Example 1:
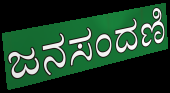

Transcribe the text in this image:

ಜನಸಂದಣಿ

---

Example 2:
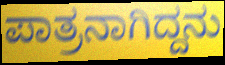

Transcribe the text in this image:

ಪಾತ್ರನಾಗಿದ್ದನು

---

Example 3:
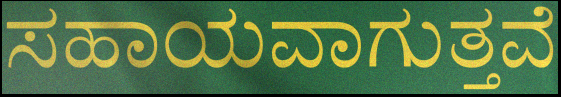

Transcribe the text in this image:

ಸಹಾಯವಾಗುತ್ತವೆ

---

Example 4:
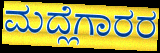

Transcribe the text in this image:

ಮದ್ಲೆಗಾರರ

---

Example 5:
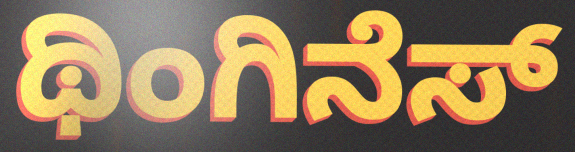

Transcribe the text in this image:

ಥಿಂಗಿನೆಸ್